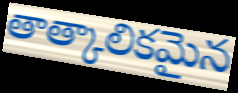
తాత్కాలికమైన